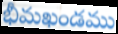
భీమఖండము